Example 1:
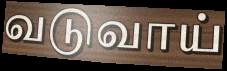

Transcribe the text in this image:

வடுவாய்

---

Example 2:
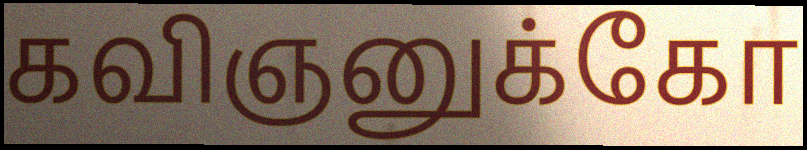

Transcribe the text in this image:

கவிஞனுக்கோ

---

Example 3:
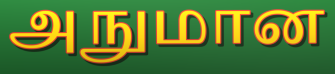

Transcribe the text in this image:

அநுமான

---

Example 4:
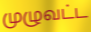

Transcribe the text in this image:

முழுவட்ட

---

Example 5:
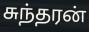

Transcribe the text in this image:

சுந்தரன்